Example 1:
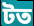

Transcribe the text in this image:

টত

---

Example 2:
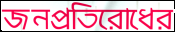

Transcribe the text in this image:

জনপ্রতিরোধের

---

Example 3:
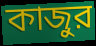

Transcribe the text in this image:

কাজুর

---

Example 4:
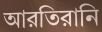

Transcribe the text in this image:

আরতিরানি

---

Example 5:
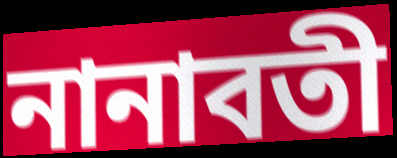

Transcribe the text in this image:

নানাবতী